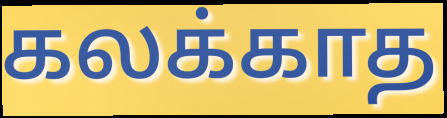
கலக்காத